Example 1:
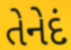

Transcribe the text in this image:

તેનેદં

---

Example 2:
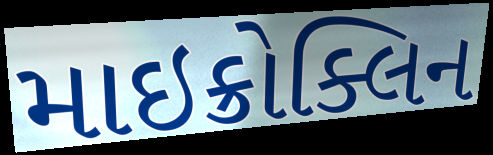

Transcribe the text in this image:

માઇક્રોક્લિન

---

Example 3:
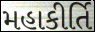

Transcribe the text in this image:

મહાકીર્તિ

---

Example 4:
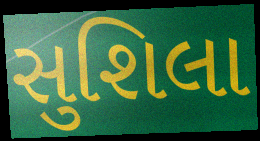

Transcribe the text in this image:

સુશિલા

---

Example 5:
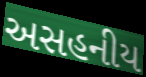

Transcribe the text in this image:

અસહનીય